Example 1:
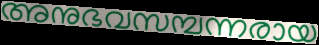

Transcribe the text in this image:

അനുഭവസമ്പന്നരായ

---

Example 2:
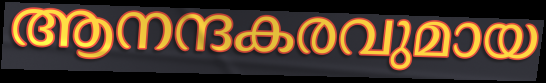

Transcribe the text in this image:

ആനന്ദകരവുമായ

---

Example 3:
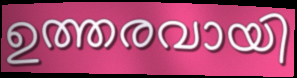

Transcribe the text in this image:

ഉത്തരവായി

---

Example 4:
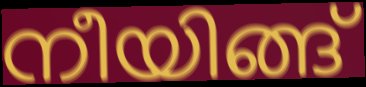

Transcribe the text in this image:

നീയിങ്ങ്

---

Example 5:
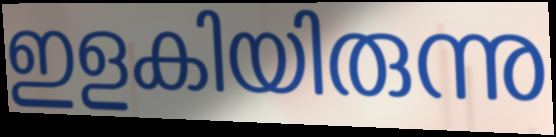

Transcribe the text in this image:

ഇളകിയിരുന്നു